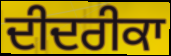
ਦੀਦਰੀਕਾ